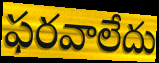
ఫరవాలేదు